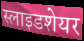
स्लाइडशेयर